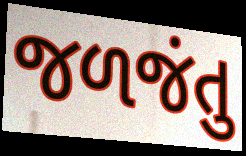
જળજંતુ